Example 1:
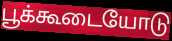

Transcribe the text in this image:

பூக்கூடையோடு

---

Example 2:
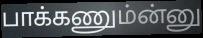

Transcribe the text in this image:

பாக்கணும்ன்னு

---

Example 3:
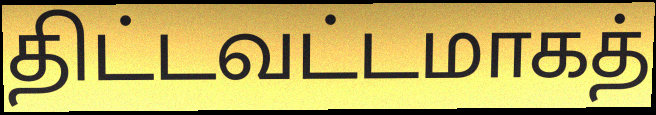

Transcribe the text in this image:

திட்டவட்டமாகத்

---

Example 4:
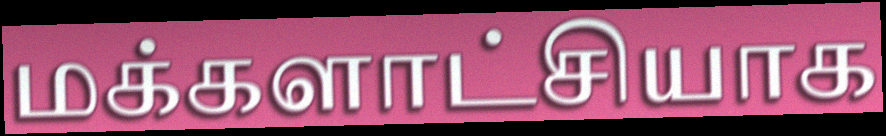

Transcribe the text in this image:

மக்களாட்சியாக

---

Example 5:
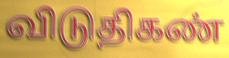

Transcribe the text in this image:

விடுதிகண்